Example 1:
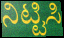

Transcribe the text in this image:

ನಿಟ್ಟಿಸಿ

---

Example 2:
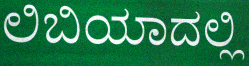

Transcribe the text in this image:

ಲಿಬಿಯಾದಲ್ಲಿ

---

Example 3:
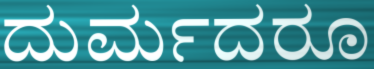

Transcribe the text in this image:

ದುರ್ಮದರೂ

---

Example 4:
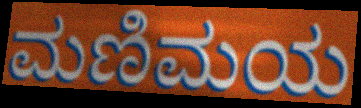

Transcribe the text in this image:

ಮಣಿಮಯ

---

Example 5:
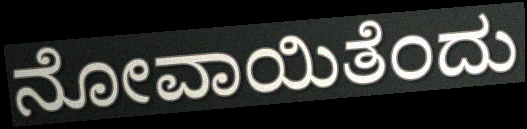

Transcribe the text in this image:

ನೋವಾಯಿತೆಂದು